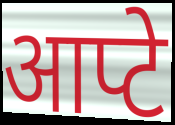
आप्टे